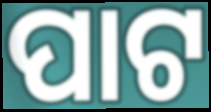
ପାଟ